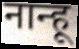
नान्हू